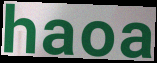
haoa